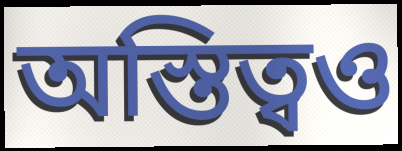
অস্তিত্বও